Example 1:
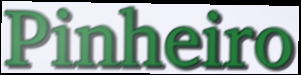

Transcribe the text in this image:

Pinheiro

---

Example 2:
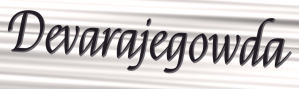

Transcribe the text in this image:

Devarajegowda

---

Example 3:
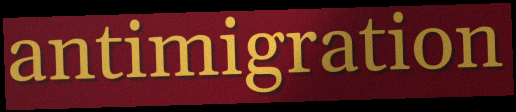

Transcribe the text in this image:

antimigration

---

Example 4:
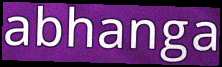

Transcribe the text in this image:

abhanga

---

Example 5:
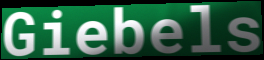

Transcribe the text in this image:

Giebels